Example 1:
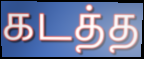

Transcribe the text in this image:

கடத்த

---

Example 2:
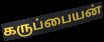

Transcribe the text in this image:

கருப்பையன்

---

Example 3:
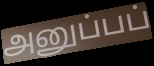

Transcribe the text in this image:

அனுப்பப்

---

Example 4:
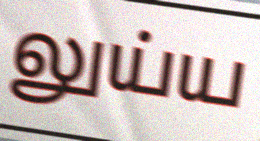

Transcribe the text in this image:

லுய்ய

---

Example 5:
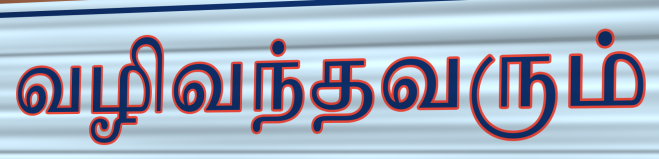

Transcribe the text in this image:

வழிவந்தவரும்